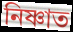
নিষ্ণাত